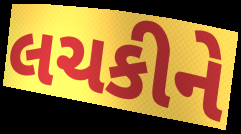
લચકીને